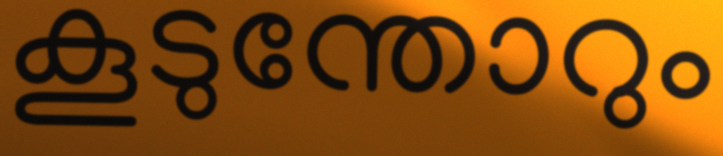
കൂടുന്തോറും